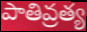
పాతివ్రత్య